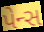
પેન્સ